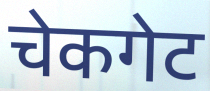
चेकगेट